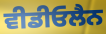
ਵੀਡੀਓਲੈਨ